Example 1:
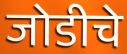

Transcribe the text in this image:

जोडीचे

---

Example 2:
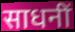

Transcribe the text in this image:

साधनीं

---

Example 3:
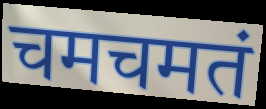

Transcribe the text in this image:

चमचमतं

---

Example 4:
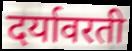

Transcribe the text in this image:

दर्यावरती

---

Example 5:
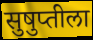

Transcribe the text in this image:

सुषुप्तीला